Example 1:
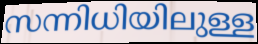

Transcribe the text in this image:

സന്നിധിയിലുള്ള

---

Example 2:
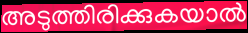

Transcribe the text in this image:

അടുത്തിരിക്കുകയാൽ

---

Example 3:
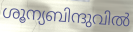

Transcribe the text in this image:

ശൂന്യബിന്ദുവിൽ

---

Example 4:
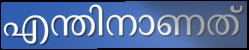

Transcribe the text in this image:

എന്തിനാണത്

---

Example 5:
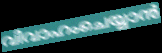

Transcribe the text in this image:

വിവാഹംചെയ്യാൻ